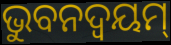
ଭୁବନଦ୍ଵୟମ୍